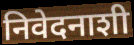
निवेदनाशी